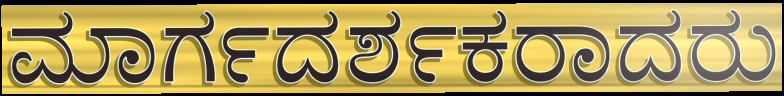
ಮಾರ್ಗದರ್ಶಕರಾದರು